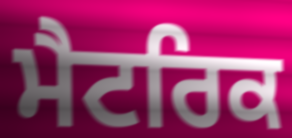
ਮੈਟਰਿਕ